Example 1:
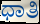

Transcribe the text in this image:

ಧಾತಿ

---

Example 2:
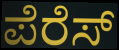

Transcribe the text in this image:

ಪೆರೆಸ್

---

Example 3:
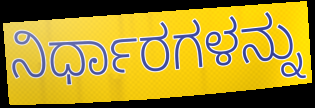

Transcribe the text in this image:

ನಿರ್ಧಾರಗಳನ್ನು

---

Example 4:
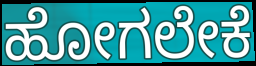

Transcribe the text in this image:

ಹೋಗಲೇಕೆ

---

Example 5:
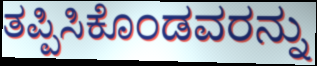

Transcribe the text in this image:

ತಪ್ಪಿಸಿಕೊಂಡವರನ್ನು